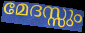
മേദസ്സും